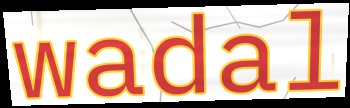
wadal